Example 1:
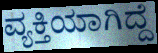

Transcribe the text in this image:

ವ್ಯಕ್ತಿಯಾಗಿದ್ದೆ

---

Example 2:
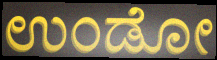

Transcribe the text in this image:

ಉಂಡೋ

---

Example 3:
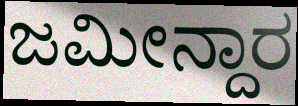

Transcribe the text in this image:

ಜಮೀನ್ದಾರ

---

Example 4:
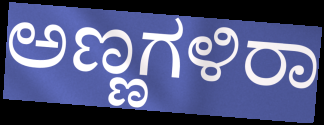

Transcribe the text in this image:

ಅಣ್ಣಗಳಿರಾ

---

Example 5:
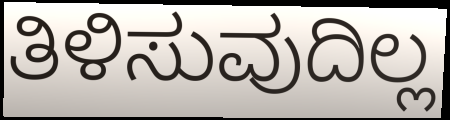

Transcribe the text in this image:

ತಿಳಿಸುವುದಿಲ್ಲ